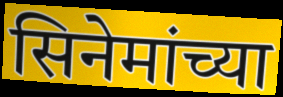
सिनेमांच्या